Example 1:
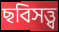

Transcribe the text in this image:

ছবিসত্ত্ব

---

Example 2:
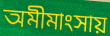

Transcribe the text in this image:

অমীমাংসায়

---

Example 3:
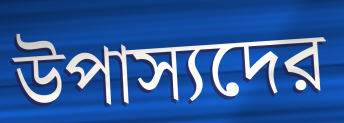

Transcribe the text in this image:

উপাস্যদের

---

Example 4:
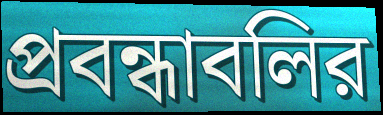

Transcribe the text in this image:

প্রবন্ধাবলির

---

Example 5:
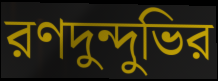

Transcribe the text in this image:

রণদুন্দুভির